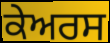
ਕੇਅਰਸ